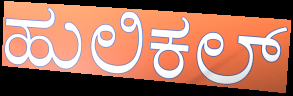
ಹುಲಿಕಲ್